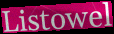
Listowel